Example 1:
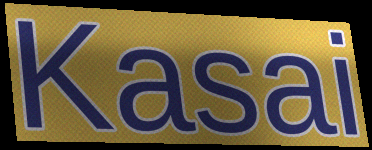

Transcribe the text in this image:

Kasai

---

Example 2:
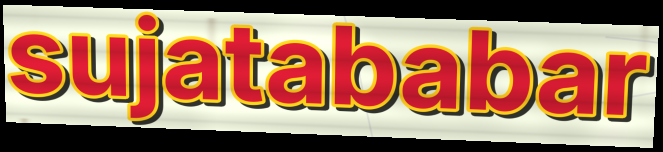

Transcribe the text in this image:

sujatababar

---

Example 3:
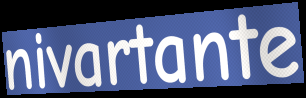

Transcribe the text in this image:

nivartante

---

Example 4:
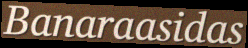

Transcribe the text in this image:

Banaraasidas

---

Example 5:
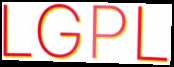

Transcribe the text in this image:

LGPL